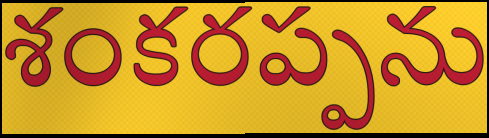
శంకరప్పను